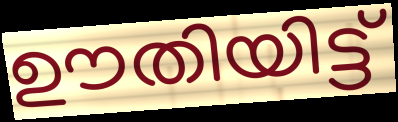
ഊതിയിട്ട്